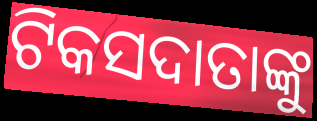
ଟିକସଦାତାଙ୍କୁ